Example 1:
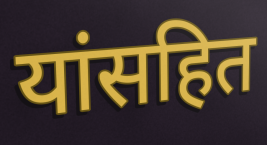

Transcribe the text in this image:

यांसहित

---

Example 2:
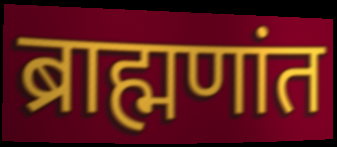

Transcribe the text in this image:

ब्राह्मणांत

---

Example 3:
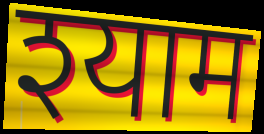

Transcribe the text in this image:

श्याम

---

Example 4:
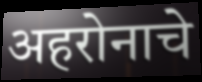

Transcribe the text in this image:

अहरोनाचे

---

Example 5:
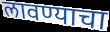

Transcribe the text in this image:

लावण्याचा